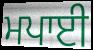
ਮਪਾਈ